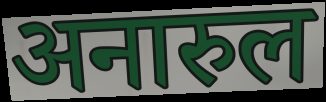
अनारुल